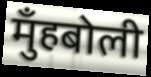
मुँहबोली